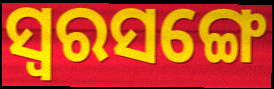
ସ୍ୱରସଙ୍ଗେ